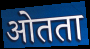
ओतता